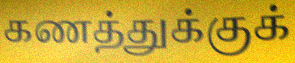
கணத்துக்குக்